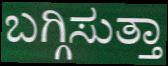
ಬಗ್ಗಿಸುತ್ತಾ